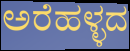
ಅರೆಹಳ್ಳದ